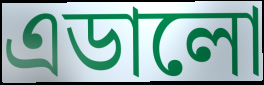
এডালো